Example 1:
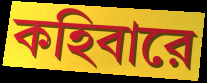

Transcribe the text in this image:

কহিবারে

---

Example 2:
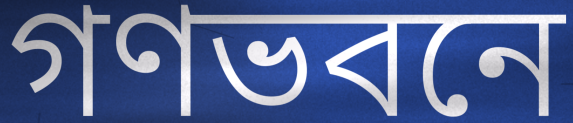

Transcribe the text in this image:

গণভবনে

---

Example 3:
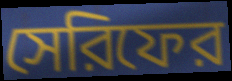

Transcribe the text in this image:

সেরিফের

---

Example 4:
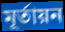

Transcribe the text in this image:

মূর্তায়ন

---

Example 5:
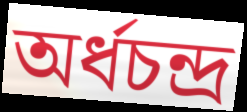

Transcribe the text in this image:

অর্ধচন্দ্র